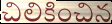
చిలికించిన